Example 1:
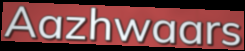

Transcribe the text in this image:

Aazhwaars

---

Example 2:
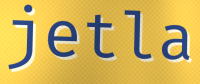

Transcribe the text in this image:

jetla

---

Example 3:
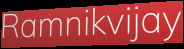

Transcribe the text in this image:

Ramnikvijay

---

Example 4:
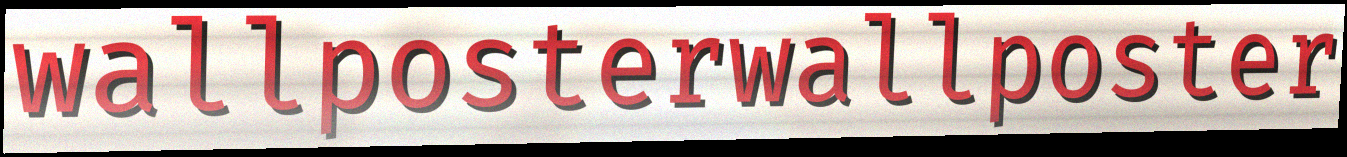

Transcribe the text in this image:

wallposterwallposter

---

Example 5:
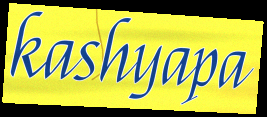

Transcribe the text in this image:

kashyapa